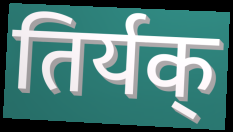
तिर्यक्